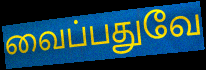
வைப்பதுவே